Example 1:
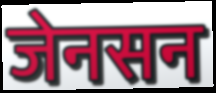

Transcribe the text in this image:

जेनसन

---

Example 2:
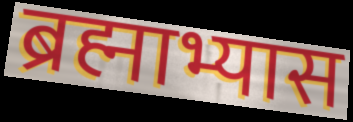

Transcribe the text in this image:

ब्रह्माभ्यास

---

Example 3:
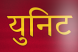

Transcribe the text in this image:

युनिट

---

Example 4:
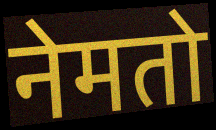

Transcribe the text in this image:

नेमतो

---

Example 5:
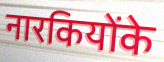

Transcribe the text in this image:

नारकियोंके